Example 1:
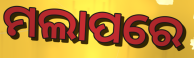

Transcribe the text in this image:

ମଲାପରେ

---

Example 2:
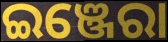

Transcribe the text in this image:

ଇଞ୍ଜେରା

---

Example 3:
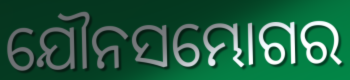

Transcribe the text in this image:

ଯୌନସମ୍ଭୋଗର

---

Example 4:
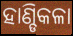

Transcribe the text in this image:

ହାଣ୍ଡିକଳା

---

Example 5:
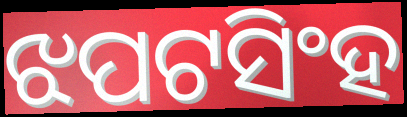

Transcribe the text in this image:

ଝପଟସିଂହ